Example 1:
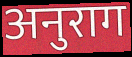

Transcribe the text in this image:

अनुराग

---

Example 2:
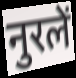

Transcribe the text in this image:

नुरलें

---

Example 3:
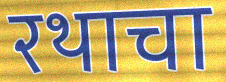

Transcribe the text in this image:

रथाचा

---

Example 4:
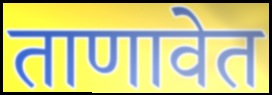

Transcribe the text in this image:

ताणावेत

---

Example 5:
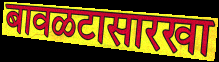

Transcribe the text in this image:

बावळटासारखा